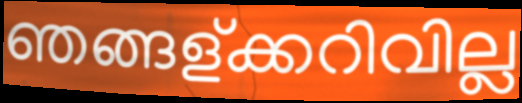
ഞങ്ങള്ക്കറിവില്ല